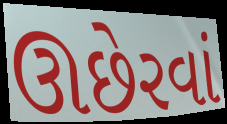
ઊછેરવાં